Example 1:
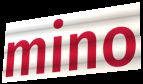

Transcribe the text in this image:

mino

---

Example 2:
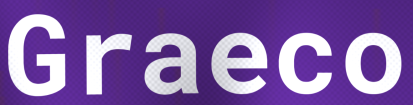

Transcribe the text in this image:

Graeco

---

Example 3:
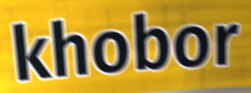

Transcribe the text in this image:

khobor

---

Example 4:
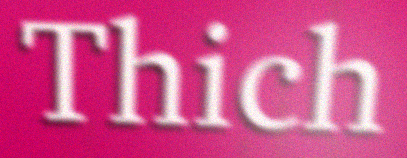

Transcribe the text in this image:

Thich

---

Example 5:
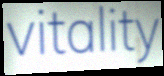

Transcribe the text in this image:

vitality